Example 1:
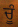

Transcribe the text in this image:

ਚੂੰ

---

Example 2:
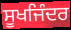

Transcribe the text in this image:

ਸੂਖਜਿੰਦਰ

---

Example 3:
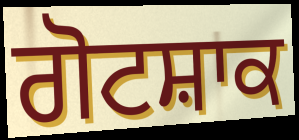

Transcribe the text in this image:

ਗੋਟਸ਼ਾਕ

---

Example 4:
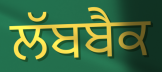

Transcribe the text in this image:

ਲੱਬਬੈਕ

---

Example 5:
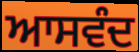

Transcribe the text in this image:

ਆਸਵੰਦ